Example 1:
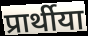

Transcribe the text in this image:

प्रार्थीया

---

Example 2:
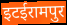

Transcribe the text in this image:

इटईरामपुर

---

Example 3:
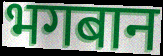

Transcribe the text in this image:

भगबान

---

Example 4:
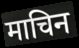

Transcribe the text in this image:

माचिन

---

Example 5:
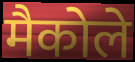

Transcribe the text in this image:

मैकोले